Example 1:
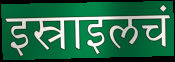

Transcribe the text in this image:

इस्राइलचं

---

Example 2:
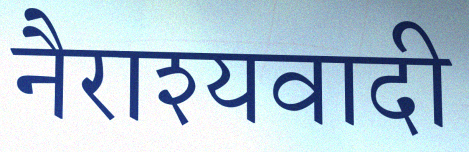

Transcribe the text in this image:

नैराश्यवादी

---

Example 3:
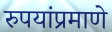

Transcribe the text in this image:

रुपयांप्रमाणे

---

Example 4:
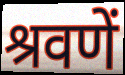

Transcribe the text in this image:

श्रवणें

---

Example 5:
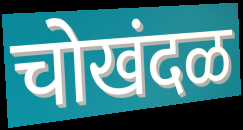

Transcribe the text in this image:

चोखंदळ